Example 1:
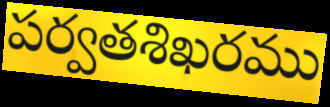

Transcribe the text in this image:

పర్వతశిఖరము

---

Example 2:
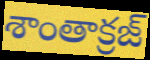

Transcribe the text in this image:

శాంతాక్రజ్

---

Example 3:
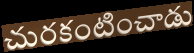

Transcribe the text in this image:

చురకంటించాడు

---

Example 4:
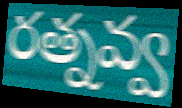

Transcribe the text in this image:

రత్నవ్వ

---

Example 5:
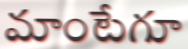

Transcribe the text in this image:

మాంటేగూ